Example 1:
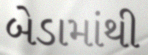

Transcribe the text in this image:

બેડામાંથી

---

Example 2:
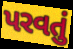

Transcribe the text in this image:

પરવતું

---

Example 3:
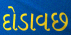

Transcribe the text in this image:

દોડાવછ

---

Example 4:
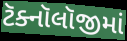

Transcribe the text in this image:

ટૅક્નૉલૉજીમાં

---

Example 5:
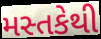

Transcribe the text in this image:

મસ્તકેથી